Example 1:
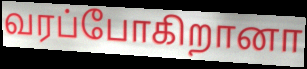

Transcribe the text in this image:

வரப்போகிறானா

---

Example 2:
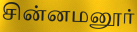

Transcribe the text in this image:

சின்னமனூர்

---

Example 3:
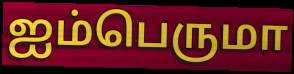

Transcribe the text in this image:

ஐம்பெருமா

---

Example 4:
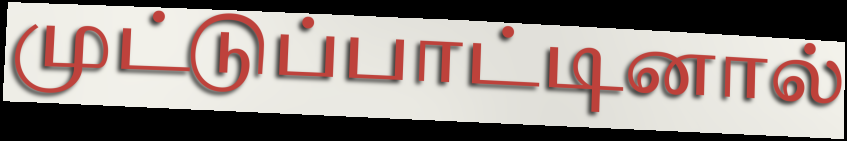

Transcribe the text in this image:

முட்டுப்பாட்டினால்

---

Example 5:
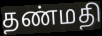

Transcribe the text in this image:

தண்மதி